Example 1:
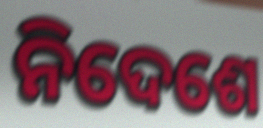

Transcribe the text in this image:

ନିଦେଶେ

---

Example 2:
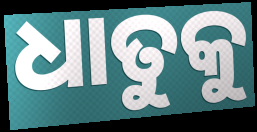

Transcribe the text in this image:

ଧାତୁକୁ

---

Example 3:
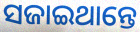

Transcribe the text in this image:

ସଜାଇଥାନ୍ତେ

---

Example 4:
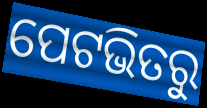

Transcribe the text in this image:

ପେଟଭିତରୁ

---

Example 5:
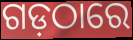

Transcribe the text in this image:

ଗଡ଼ଠାରେ